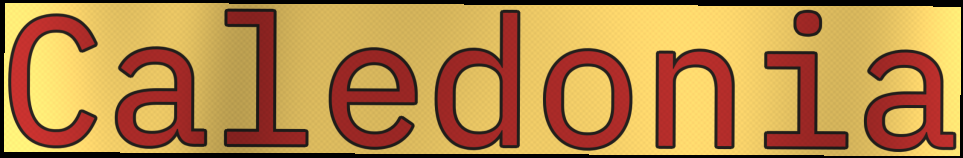
Caledonia